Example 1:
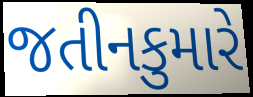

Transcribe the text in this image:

જતીનકુમારે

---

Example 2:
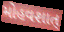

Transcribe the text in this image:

મોહવશાત્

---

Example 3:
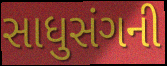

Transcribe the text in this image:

સાધુસંગની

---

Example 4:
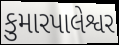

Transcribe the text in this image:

કુમારપાલેશ્વર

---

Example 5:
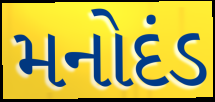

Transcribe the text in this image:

મનોદંડ